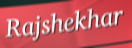
Rajshekhar